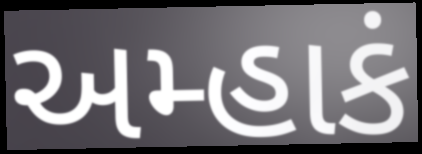
અમ્હાકં